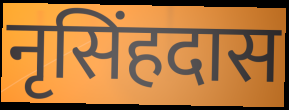
नृसिंहदास